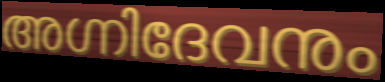
അഗ്നിദേവനും